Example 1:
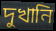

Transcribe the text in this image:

দুখানি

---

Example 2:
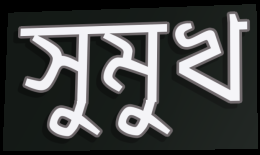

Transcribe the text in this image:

সুমুখ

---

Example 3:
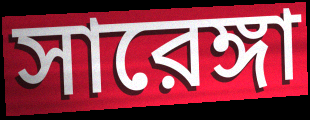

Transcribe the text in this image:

সারেঙ্গা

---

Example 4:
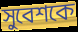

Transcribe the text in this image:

সুবেশকে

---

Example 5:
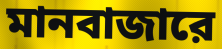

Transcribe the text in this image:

মানবাজারে